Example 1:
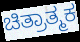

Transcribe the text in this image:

ಚಿತ್ರಾತ್ಮಕ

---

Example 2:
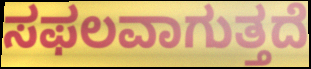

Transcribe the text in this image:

ಸಫಲವಾಗುತ್ತದೆ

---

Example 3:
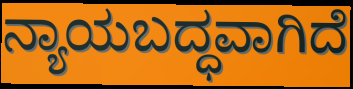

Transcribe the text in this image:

ನ್ಯಾಯಬದ್ಧವಾಗಿದೆ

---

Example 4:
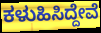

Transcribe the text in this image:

ಕಳುಹಿಸಿದ್ದೇವೆ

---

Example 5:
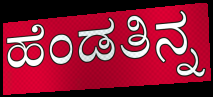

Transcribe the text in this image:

ಹೆಂಡತಿನ್ನ